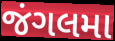
જંગલમા